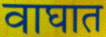
वाघात